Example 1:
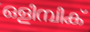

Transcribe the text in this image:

ഒളിമ്പിക്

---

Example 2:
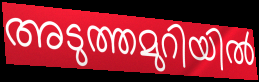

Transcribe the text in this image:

അടുത്തമുറിയിൽ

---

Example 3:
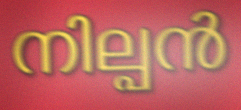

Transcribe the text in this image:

നില്പൻ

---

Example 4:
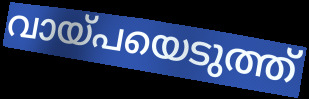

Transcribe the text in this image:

വായ്പയെടുത്ത്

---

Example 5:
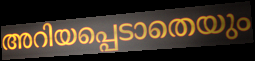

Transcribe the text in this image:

അറിയപ്പെടാതെയും